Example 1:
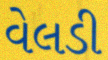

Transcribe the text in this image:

વેલડી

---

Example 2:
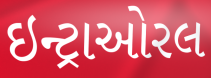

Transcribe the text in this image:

ઇન્ટ્રાઓરલ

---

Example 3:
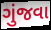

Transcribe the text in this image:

ગુંજવા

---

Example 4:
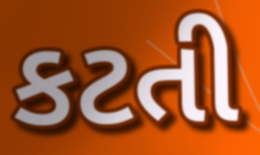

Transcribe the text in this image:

કટતી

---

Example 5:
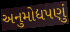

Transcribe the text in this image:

અનુમોદ્યપણું